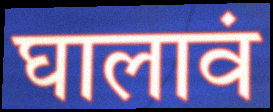
घालावं